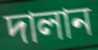
দালান